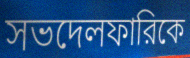
সভদেলফারিকে